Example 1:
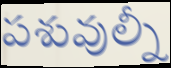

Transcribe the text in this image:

పశువుల్నీ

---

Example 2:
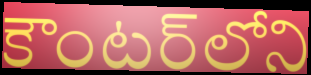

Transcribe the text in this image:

కౌంటర్‌లోని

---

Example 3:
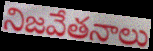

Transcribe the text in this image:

నిజవేతనాలు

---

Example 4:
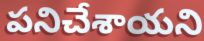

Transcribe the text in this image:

పనిచేశాయని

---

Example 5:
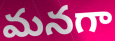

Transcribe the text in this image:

మనగా